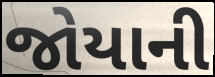
જોયાની